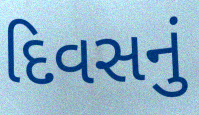
દિવસનું